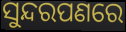
ସୁନ୍ଦରପଣରେ